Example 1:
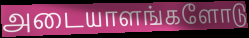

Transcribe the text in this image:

அடையாளங்களோடு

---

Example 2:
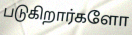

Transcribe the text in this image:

படுகிறார்களோ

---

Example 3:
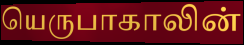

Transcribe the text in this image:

யெருபாகாலின்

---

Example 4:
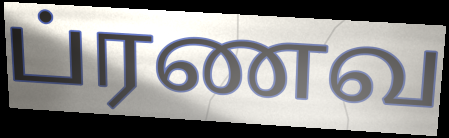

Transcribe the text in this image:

ப்ரணவ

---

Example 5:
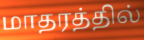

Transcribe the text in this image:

மாதரத்தில்